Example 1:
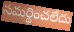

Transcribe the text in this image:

సమర్థించలేదు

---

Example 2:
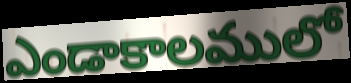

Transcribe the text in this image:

ఎండాకాలములో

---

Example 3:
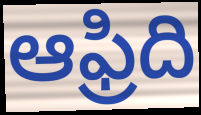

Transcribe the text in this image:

ఆఫ్రిది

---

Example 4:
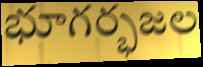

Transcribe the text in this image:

భూగర్భజల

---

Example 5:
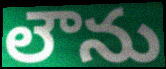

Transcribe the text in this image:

లౌను